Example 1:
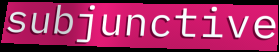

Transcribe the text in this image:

subjunctive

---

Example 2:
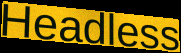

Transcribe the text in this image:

Headless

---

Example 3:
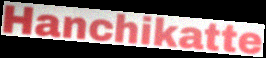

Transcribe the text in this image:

Hanchikatte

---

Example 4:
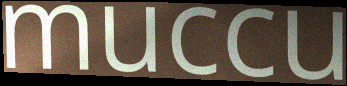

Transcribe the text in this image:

muccu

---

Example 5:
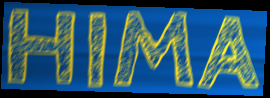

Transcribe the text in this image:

HIMA